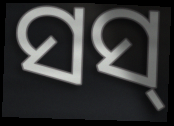
ସସ୍